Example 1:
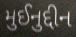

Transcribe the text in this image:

મુઈનુદ્દીન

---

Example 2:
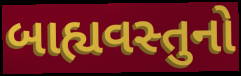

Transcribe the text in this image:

બાહ્યવસ્તુનો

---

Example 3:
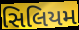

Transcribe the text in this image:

સિલિયમ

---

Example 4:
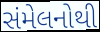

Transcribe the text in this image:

સંમેલનોથી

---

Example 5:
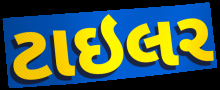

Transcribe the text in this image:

ટાઇલર